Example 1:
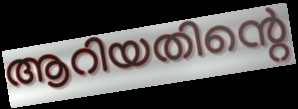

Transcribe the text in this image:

ആറിയതിന്റെ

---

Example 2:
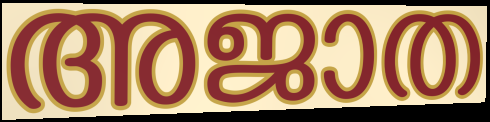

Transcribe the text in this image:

അജാത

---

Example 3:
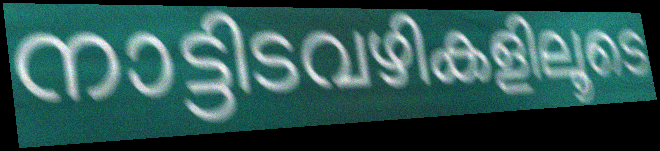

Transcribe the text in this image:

നാട്ടിടവഴികളിലൂടെ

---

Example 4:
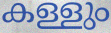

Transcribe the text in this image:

കള്ളും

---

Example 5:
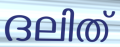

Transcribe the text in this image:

ദലിത്